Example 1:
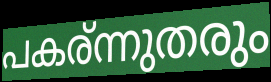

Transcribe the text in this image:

പകര്ന്നുതരും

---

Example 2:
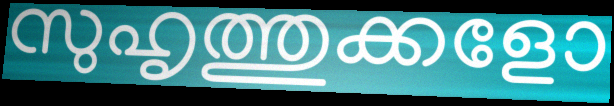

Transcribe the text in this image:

സുഹൃത്തുക്കളോ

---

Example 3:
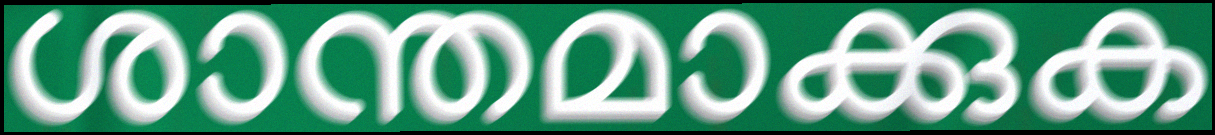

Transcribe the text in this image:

ശാന്തമാക്കുക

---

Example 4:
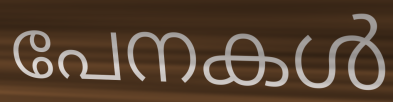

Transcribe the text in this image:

പേനകൾ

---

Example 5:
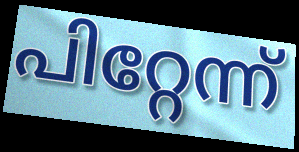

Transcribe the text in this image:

പിറ്റേന്ന്